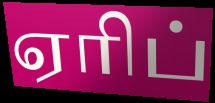
ஏரிப்